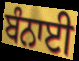
ਬੰਨਾਈ